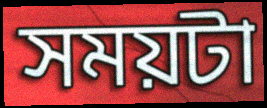
সময়টা